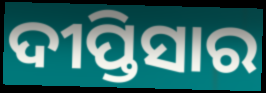
ଦୀପ୍ତିସାର